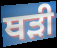
ਥੜੀ